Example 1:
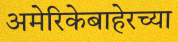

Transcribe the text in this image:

अमेरिकेबाहेरच्या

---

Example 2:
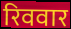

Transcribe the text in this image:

रिववार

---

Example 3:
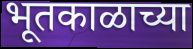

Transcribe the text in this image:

भूतकाळाच्या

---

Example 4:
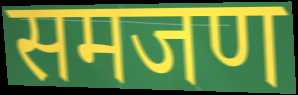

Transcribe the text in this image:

समजण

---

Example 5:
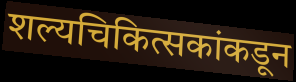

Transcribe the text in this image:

शल्यचिकित्सकांकडून